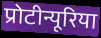
प्रोटीन्यूरिया